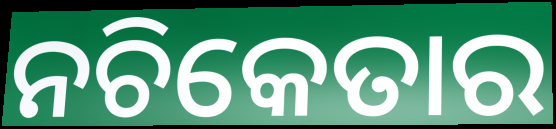
ନଚିକେତାର